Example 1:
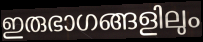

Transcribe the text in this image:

ഇരുഭാഗങ്ങളിലും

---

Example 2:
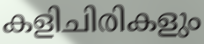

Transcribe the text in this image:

കളിചിരികളും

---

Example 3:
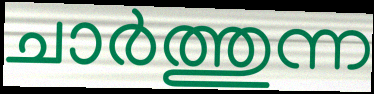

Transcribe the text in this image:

ചാർത്തുന്ന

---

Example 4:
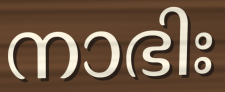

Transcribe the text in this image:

നാഭിഃ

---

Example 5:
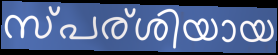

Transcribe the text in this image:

സ്പര്ശിയായ